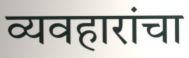
व्यवहारांचा